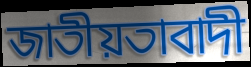
জাতীয়তাবাদী